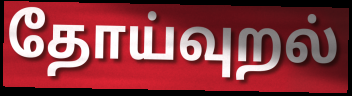
தோய்வுறல்